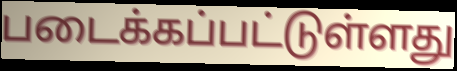
படைக்கப்பட்டுள்ளது